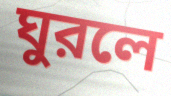
ঘুরলে